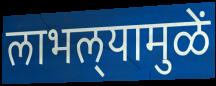
लाभल्यामुळें